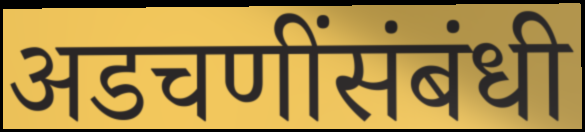
अडचणींसंबंधी